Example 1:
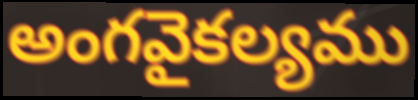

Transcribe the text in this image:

అంగవైకల్యము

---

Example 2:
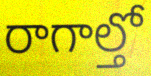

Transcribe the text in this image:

రాగాల్తో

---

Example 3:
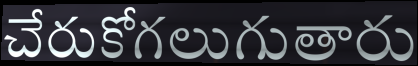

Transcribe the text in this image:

చేరుకోగలుగుతారు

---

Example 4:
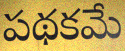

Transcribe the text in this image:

పథకమే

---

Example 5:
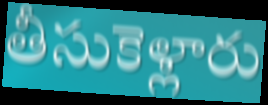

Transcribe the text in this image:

తీసుకెళ్లారు